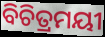
ବିଚିତ୍ରମୟୀ